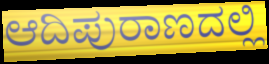
ಆದಿಪುರಾಣದಲ್ಲಿ